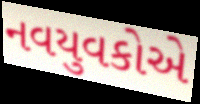
નવયુવકોએ